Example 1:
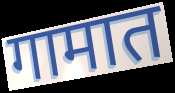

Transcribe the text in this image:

गामात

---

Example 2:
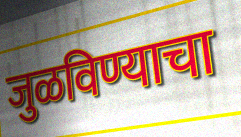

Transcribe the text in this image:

जुळविण्याचा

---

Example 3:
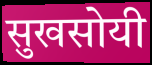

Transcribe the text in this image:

सुखसोयी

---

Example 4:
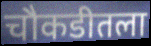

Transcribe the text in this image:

चौकडीतला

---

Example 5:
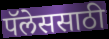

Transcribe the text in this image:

पॅलेससाठी